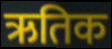
ऋतिक